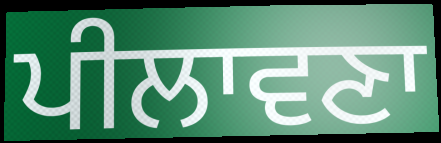
ਪੀਲਾਵਣਾ